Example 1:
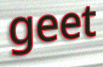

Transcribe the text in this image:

geet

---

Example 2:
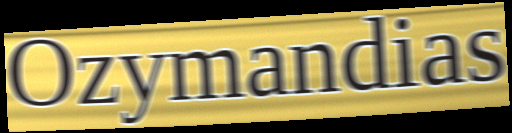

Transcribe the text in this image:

Ozymandias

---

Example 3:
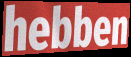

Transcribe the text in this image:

hebben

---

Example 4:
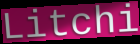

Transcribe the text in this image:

Litchi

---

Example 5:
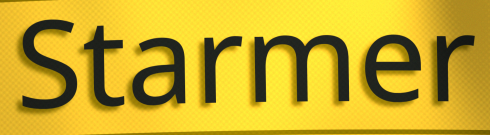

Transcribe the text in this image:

Starmer